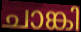
ചാങ്കി